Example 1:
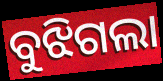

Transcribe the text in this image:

ବୁଝିଗଲା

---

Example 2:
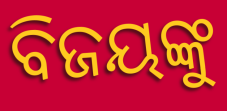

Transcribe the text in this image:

ବିଜୟଙ୍କୁ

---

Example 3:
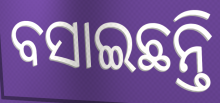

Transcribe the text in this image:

ବସାଇଛନ୍ତି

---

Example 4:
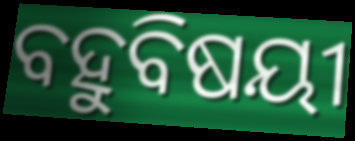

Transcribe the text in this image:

ବହୁବିଷୟୀ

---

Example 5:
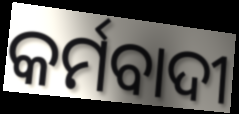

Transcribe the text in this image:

କର୍ମବାଦୀ